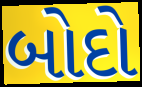
બોદો